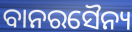
ବାନରସୈନ୍ୟ